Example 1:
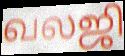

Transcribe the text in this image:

வலஜி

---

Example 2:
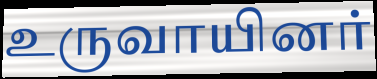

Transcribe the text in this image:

உருவாயினர்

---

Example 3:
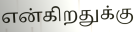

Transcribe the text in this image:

என்கிறதுக்கு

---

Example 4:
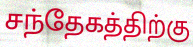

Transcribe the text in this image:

சந்தேகத்திற்கு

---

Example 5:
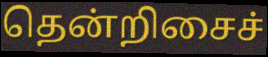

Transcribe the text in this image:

தென்றிசைச்